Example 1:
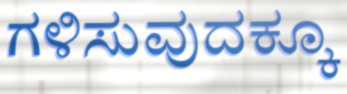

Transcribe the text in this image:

ಗಳಿಸುವುದಕ್ಕೂ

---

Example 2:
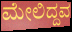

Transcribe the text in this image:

ಮೇಲಿದ್ದವ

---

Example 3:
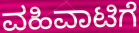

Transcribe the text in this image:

ವಹಿವಾಟಿಗೆ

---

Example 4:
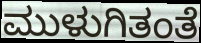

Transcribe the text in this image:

ಮುಳುಗಿತಂತೆ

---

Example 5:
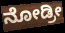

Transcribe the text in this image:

ನೋಡ್ರೀ